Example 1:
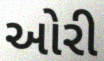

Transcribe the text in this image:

ઓરી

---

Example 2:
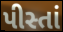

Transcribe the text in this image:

પીસ્તાં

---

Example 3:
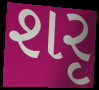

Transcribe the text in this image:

શરૃ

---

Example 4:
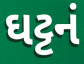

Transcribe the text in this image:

ઘટ્ટનં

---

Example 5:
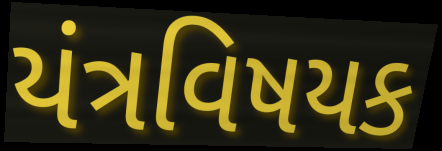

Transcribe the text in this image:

યંત્રવિષયક